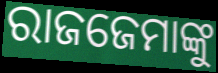
ରାଜଜେମାଙ୍କୁ